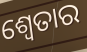
ଶ୍ଵେତାର